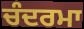
ਚੰਦਰਮਾ